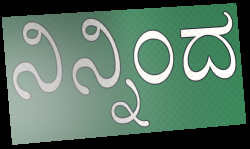
ನಿನ್ನಿಂದ